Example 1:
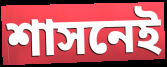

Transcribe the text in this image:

শাসনেই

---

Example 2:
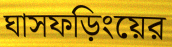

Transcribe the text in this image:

ঘাসফড়িংয়ের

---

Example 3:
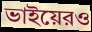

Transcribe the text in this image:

ভাইয়েরও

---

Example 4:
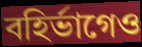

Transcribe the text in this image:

বহির্ভাগেও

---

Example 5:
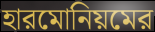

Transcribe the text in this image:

হারমোনিয়মের